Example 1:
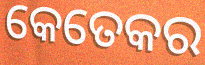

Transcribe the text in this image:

କେତେକର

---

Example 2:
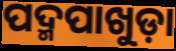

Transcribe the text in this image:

ପଦ୍ମପାଖୁଡ଼ା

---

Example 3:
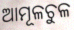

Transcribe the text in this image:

ଆମୂଳଚୁଳ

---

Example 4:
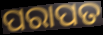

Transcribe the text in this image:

ପରାପତ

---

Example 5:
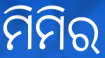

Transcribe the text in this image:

ମିମିର